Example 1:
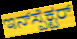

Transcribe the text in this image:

ಇನ್‌ಸ್ಪೆಕ್ಟರ್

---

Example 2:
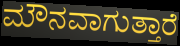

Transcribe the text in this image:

ಮೌನವಾಗುತ್ತಾರೆ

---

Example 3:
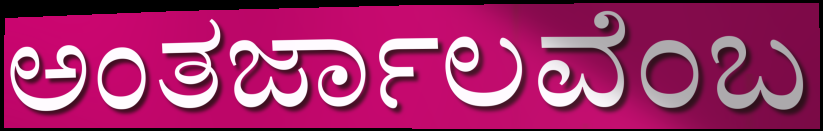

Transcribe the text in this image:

ಅಂತರ್ಜಾಲವೆಂಬ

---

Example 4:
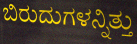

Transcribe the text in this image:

ಬಿರುದುಗಳನ್ನಿತ್ತು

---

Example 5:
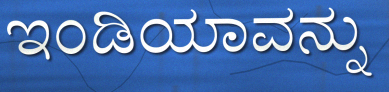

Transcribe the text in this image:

ಇಂಡಿಯಾವನ್ನು